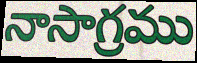
నాసాగ్రము